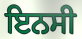
ਇਨਸੀ